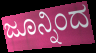
ಜೂನ್ನಿಂದ